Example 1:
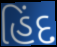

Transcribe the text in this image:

હિંદ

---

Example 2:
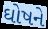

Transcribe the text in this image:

ઘોષને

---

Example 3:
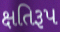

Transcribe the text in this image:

ક્ષતિરૂપ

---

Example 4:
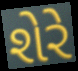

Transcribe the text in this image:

શેરે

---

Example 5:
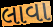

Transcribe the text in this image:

લાવા